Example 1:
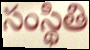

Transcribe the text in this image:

సంస్థితి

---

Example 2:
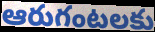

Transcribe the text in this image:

ఆరుగంటలకు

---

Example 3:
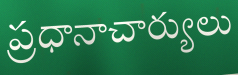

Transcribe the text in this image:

ప్రధానాచార్యులు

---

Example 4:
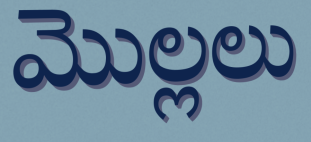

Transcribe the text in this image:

మొల్లలు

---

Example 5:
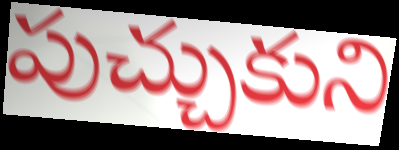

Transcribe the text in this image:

పుచ్చుకుని